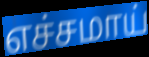
எச்சமாய்